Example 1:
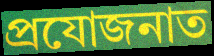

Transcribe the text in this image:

প্ৰযোজনাত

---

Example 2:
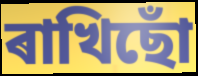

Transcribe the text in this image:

ৰাখিছোঁ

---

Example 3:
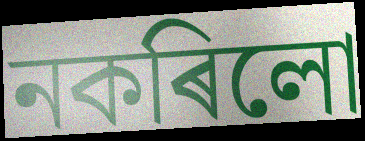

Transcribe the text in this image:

নকৰিলো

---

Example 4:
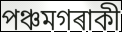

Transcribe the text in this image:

পঞ্চমগৰাকী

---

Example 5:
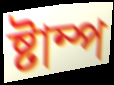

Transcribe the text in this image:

ষ্টাম্প